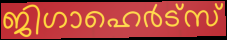
ജിഗാഹെർട്സ്